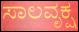
ಸಾಲವೃಕ್ಷ